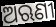
ଅଋଣୀ